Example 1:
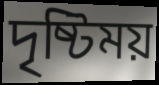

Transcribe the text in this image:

দৃষ্টিময়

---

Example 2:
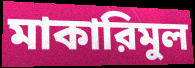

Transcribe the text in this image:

মাকারিমুল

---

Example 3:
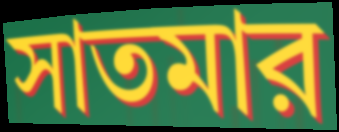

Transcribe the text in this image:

সাতমার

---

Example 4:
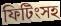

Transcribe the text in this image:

ফিটিংসহ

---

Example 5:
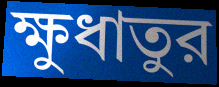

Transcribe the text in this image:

ক্ষুধাতুর